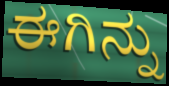
ಈಗಿನ್ನು